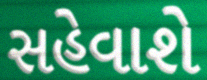
સહેવાશે